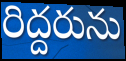
రిద్దరును